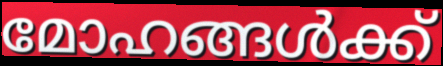
മോഹങ്ങൾക്ക്